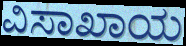
ವಿಸಾಖಾಯ